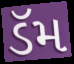
ડૅમ